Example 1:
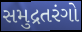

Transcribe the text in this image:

સમુદ્રતરંગો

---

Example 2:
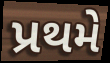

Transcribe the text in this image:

પ્રથમે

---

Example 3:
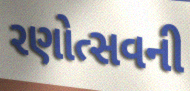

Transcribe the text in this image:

રણોત્સવની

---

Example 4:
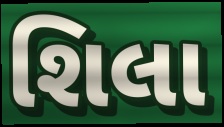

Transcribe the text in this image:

શિલા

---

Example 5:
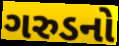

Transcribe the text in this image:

ગરુડનો